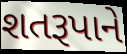
શતરૂપાને